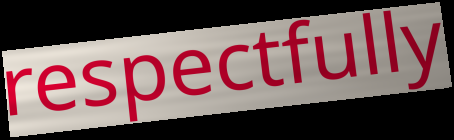
respectfully